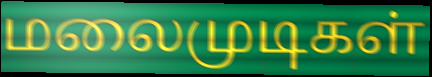
மலைமுடிகள்